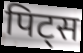
पिट्स